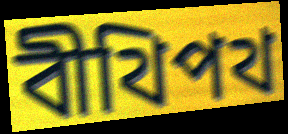
বীথিপথ